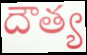
దౌత్య